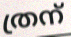
ത്രന്